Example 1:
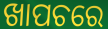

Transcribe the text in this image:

ଖାପଚରେ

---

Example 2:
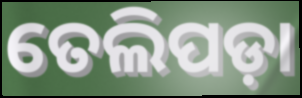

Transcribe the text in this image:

ତେଲିପଡ଼ା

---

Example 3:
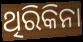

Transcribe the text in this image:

ଥିରିକିନା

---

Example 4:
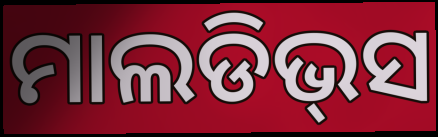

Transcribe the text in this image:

ମାଲଡିଭ୍‌ସ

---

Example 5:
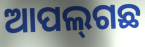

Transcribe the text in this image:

ଆପଲ୍‍ଗଛ